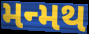
મન્મથ